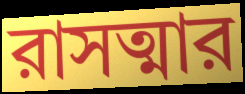
রাসত্মার